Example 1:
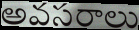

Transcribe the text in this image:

అవసరాలు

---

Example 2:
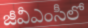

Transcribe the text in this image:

జీవీఎంసీలో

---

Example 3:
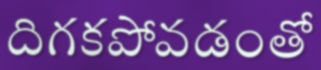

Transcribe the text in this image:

దిగకపోవడంతో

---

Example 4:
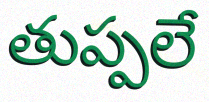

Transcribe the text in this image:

తుప్పలే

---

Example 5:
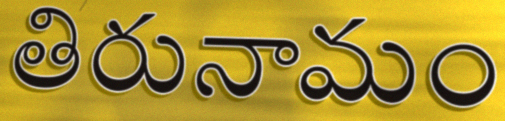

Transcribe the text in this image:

తిరునామం